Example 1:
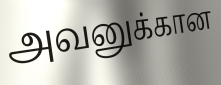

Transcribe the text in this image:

அவனுக்கான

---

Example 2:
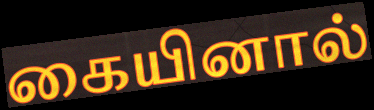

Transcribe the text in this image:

கையினால்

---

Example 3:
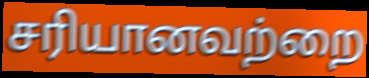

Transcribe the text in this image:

சரியானவற்றை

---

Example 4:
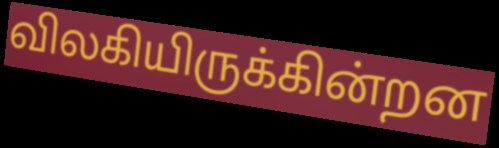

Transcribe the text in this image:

விலகியிருக்கின்றன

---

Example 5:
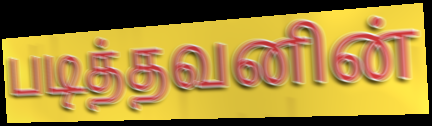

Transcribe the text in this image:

படித்தவனின்